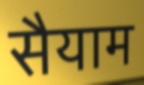
सैयाम